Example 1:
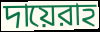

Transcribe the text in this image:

দায়েরাহ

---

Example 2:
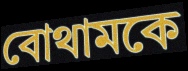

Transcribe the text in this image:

বোথামকে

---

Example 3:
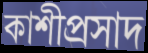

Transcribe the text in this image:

কাশীপ্রসাদ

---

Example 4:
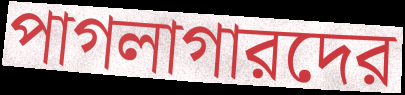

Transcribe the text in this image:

পাগলাগারদের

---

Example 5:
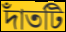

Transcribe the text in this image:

দাঁতটি